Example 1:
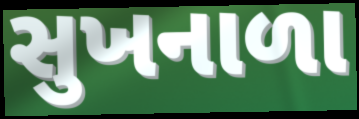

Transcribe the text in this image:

સુખનાળા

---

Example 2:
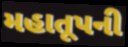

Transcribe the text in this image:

મહાતૂપની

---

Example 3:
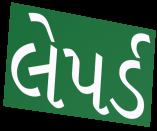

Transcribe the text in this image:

લેપર્ડ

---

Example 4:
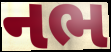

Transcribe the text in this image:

નભ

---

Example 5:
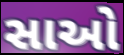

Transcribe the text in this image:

સાઓ